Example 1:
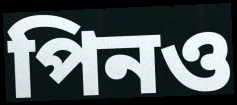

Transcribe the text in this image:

পিনও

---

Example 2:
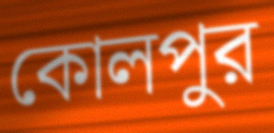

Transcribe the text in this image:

কোলপুর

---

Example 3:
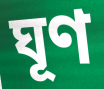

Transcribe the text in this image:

ঘূণ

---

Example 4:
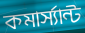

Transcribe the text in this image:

কমার্স্যান্ট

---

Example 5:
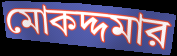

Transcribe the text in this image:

মোকদ্দমার